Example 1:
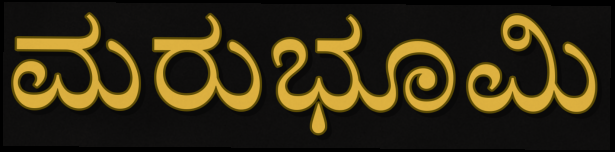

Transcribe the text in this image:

ಮರುಭೂಮಿ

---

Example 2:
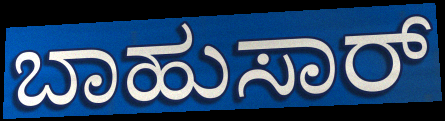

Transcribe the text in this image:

ಬಾಹುಸಾರ್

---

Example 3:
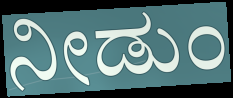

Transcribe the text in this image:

ನೀಡುಂ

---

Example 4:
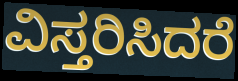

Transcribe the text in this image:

ವಿಸ್ತರಿಸಿದರೆ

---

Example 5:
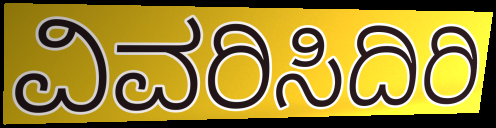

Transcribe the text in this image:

ವಿವರಿಸಿದಿರಿ